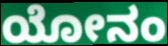
ಯೋನಂ